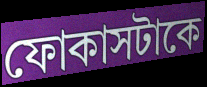
ফোকাসটাকে